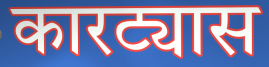
कारट्यास